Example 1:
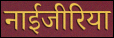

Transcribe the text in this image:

नाईजीरिया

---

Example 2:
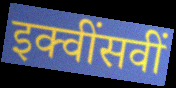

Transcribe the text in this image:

इक्वींसवीं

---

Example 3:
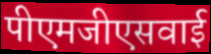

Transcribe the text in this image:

पीएमजीएसवाई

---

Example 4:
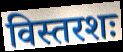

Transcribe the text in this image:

विस्तरशः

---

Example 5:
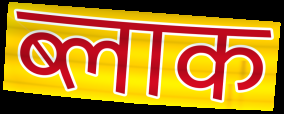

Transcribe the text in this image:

ब्लाक